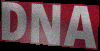
DNA